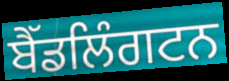
ਬੈੱਡਲਿੰਗਟਨ